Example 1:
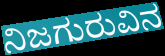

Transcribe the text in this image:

ನಿಜಗುರುವಿನ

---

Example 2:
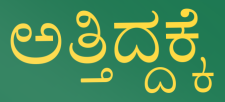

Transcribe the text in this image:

ಅತ್ತಿದ್ದಕ್ಕೆ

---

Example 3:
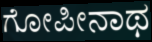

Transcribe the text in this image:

ಗೋಪೀನಾಥ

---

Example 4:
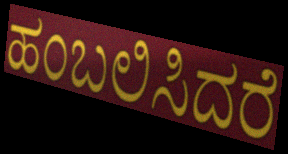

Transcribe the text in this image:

ಹಂಬಲಿಸಿದರೆ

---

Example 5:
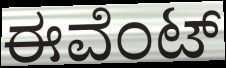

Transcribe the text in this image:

ಈವೆಂಟ್